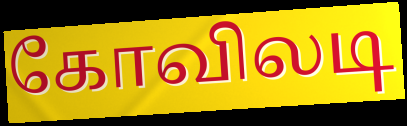
கோவிலடி